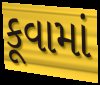
કૂવામાં